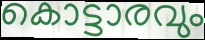
കൊട്ടാരവും